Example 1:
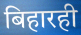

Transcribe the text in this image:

बिहारही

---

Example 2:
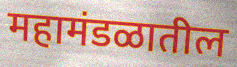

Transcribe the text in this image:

महामंडळातील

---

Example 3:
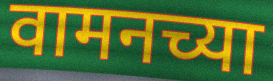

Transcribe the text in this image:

वामनच्या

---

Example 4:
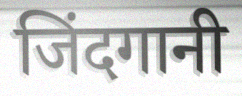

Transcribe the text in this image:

जिंदगानी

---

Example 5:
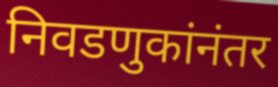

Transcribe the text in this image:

निवडणुकांनंतर